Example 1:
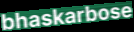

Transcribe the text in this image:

bhaskarbose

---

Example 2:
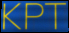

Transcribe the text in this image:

KPT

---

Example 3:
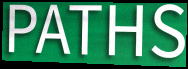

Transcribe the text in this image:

PATHS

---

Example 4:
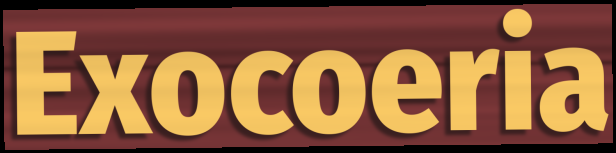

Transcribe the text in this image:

Exocoeria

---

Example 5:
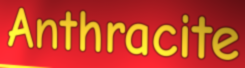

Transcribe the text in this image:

Anthracite